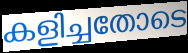
കളിച്ചതോടെ